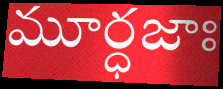
మూర్ధజాః